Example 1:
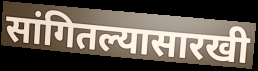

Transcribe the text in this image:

सांगितल्यासारखी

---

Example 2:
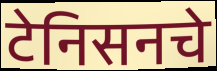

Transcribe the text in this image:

टेनिसनचे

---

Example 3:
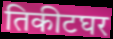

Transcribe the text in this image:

तिकीटघर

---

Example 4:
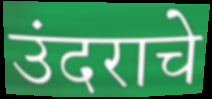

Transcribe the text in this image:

उंदराचे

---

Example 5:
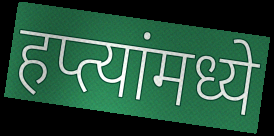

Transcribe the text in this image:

हप्त्यांमध्ये